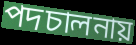
পদচালনায়